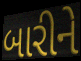
બારીને